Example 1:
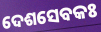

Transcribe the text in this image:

ଦେଶସେବକଃ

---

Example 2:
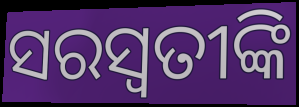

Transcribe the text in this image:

ସରସ୍ୱତୀଙ୍କି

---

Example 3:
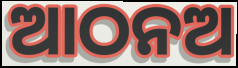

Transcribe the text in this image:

ଆଠନଅ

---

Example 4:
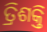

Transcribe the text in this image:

ତ୍ରିଶକ୍ତି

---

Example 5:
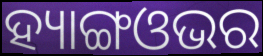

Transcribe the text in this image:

ହ୍ୟାଙ୍ଗଓଭର